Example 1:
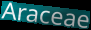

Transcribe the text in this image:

Araceae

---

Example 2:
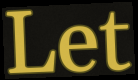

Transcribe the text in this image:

Let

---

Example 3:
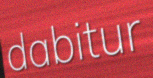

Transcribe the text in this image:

dabitur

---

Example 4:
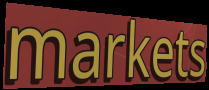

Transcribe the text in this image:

markets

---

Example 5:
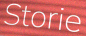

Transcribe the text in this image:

Storie